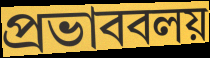
প্রভাববলয়